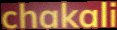
chakali